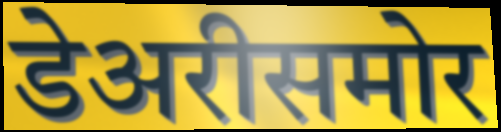
डेअरीसमोर